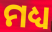
ମଧ୍ୟ